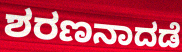
ಶರಣನಾದಡೆ